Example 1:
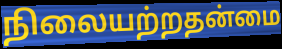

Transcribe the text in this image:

நிலையற்றதன்மை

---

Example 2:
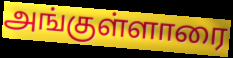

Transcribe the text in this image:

அங்குள்ளாரை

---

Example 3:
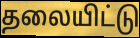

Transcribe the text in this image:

தலையிட்டு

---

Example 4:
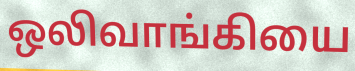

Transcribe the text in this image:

ஒலிவாங்கியை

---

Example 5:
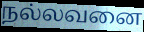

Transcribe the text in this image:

நல்லவனை